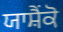
ਯਾਸ਼ੈਂਕੋ